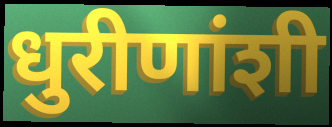
धुरीणांशी